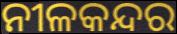
ନୀଳକନ୍ଦର